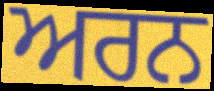
ਅਰਨ